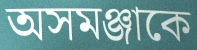
অসমঞ্জাকে